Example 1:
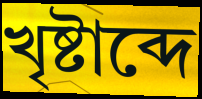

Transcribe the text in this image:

খৃষ্টাব্দে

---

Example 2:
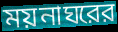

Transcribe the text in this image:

ময়নাঘরের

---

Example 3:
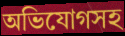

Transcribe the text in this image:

অভিযোগসহ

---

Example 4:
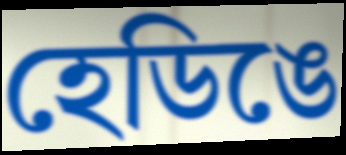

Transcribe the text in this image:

হেডিঙে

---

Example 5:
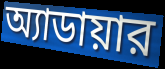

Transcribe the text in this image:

অ্যাডায়ার